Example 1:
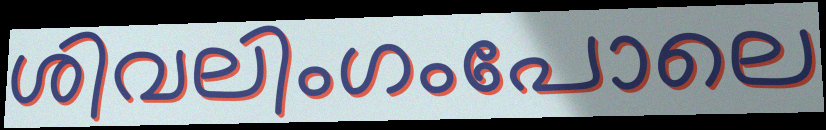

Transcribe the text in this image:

ശിവലിംഗംപോലെ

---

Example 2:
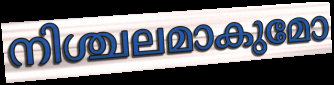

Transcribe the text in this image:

നിശ്ചലമാകുമോ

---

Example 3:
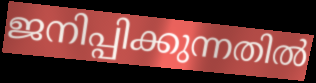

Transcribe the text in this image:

ജനിപ്പിക്കുന്നതിൽ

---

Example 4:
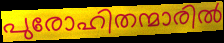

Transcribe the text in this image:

പുരോഹിതന്മാരിൽ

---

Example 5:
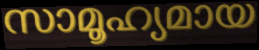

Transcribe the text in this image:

സാമൂഹ്യമായ